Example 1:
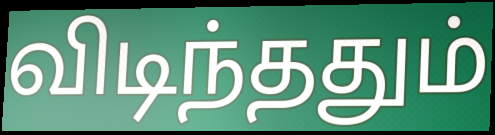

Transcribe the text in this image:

விடிந்ததும்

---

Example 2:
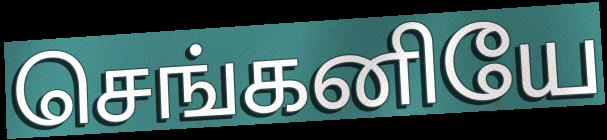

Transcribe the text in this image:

செங்கனியே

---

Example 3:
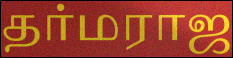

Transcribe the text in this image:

தர்மராஜ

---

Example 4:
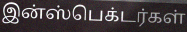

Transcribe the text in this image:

இன்ஸ்பெக்டர்கள்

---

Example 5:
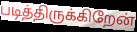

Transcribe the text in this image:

படித்திருக்கிறேன்